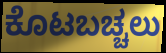
ಕೊಟಬಚ್ಚಲು